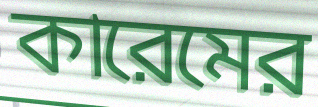
কারেমের